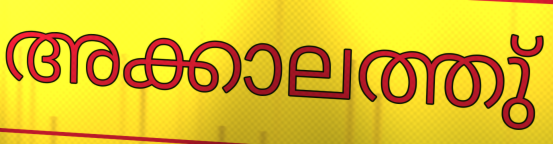
അക്കാലത്തു്